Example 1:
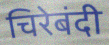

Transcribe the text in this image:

चिरेबंदी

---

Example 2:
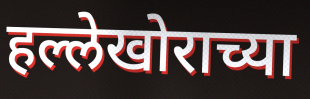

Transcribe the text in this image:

हल्लेखोराच्या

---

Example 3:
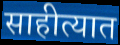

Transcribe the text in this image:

साहीत्यात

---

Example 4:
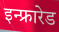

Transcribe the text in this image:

इन्फ्रारेड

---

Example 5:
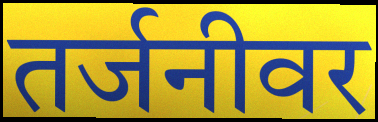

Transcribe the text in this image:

तर्जनीवर